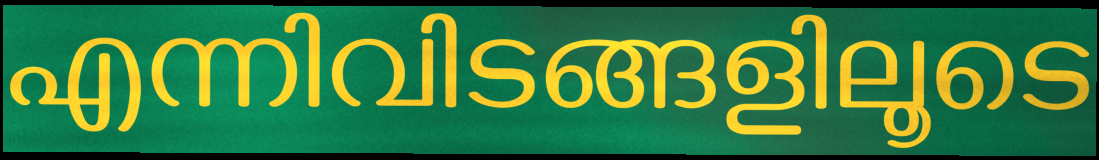
എന്നിവിടങ്ങളിലൂടെ